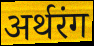
अर्थरंग